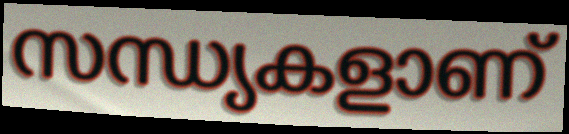
സന്ധ്യകളാണ്